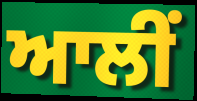
ਆਲੀਂ